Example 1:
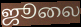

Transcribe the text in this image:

ஜூலை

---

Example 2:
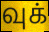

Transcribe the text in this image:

வுக்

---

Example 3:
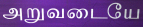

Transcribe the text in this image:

அறுவடையே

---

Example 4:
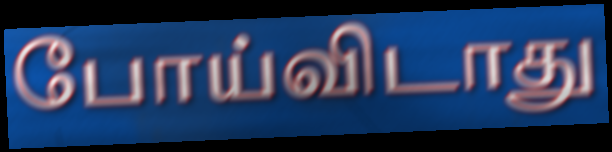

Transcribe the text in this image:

போய்விடாது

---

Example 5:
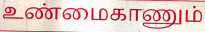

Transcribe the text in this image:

உண்மைகாணும்